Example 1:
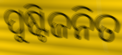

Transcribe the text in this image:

ପୁଷ୍ଟିଜନିତ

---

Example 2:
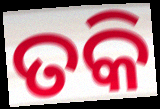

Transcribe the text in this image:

ତକି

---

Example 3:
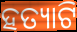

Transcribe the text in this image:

ହତ୍ୟାଟି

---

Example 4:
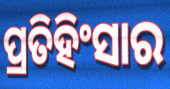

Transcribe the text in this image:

ପ୍ରତିହିଂସାର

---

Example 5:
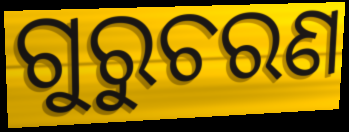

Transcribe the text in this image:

ଗୁରୁଚରଣ